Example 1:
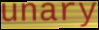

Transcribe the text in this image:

unary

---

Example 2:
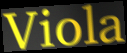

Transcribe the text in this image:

Viola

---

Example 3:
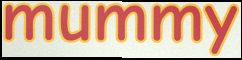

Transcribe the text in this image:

mummy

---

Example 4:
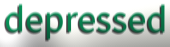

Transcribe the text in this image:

depressed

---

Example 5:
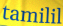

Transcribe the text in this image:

tamilil